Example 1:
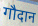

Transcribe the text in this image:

गौदान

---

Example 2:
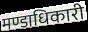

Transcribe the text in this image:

मण्डाधिकारी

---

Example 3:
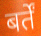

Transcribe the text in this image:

बर्तें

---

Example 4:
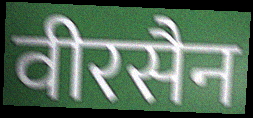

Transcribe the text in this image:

वीरसैन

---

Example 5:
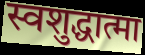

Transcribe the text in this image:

स्वशुद्धात्मा